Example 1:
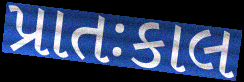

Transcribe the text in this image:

પ્રાતઃકાલ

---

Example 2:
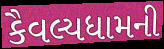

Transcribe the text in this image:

કૈવલ્યધામની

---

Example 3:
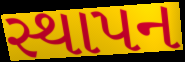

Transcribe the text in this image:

સ્થાપન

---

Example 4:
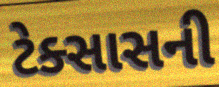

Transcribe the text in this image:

ટેક્સાસની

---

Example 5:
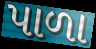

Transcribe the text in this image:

પાળા